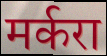
मर्करा